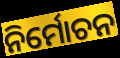
ନିର୍ମୋଚନ